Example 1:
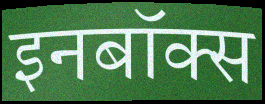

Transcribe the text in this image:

इनबॉक्स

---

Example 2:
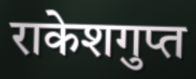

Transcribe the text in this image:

राकेशगुप्त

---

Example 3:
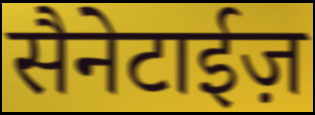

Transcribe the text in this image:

सैनेटाईज़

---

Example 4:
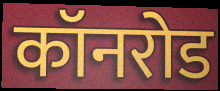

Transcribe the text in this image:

कॉनरोड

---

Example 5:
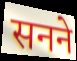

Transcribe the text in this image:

सनने